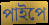
পাইপে